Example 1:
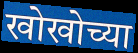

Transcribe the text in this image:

खोखोच्या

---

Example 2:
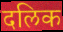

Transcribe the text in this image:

दलिक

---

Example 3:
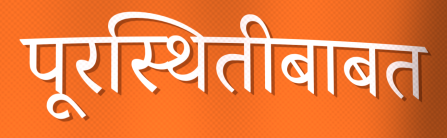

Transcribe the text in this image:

पूरस्थितीबाबत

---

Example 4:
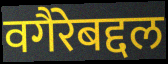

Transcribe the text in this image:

वगैरेबद्दल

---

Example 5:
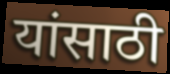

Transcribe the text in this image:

यांसाठी